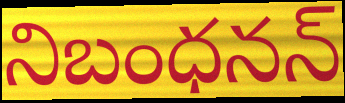
నిబంధనన్